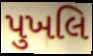
પુખલિ